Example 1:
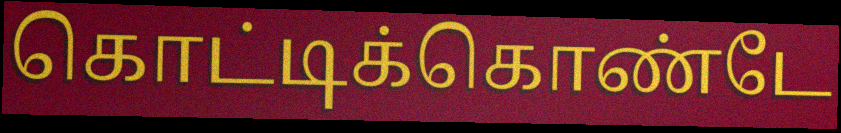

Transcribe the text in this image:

கொட்டிக்கொண்டே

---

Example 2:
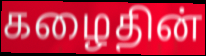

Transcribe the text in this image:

கழைதின்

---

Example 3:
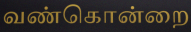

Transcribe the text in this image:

வண்கொன்றை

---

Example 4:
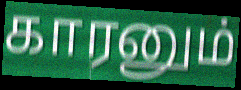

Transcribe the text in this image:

காரனும்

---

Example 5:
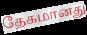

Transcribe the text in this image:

தேகமானது